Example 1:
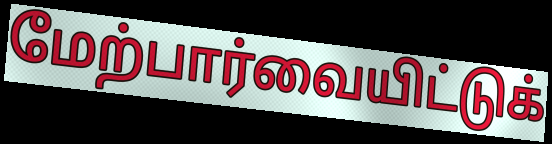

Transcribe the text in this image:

மேற்பார்வையிட்டுக்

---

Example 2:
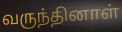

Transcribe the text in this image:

வருந்தினாள்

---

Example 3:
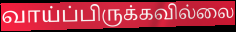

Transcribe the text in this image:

வாய்ப்பிருக்கவில்லை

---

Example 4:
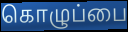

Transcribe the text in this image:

கொழுப்பை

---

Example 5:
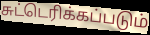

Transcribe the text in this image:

சுட்டெரிக்கப்படும்